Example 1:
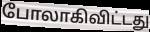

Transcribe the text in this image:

போலாகிவிட்டது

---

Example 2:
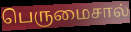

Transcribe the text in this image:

பெருமைசால்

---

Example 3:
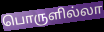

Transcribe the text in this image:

பொருளில்லா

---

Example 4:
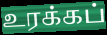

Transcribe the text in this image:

உரக்கப்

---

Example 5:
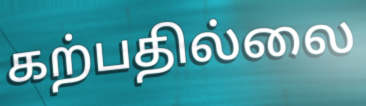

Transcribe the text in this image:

கற்பதில்லை